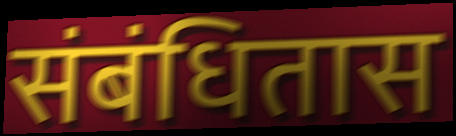
संबंधितास